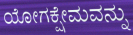
ಯೋಗಕ್ಷೇಮವನ್ನು